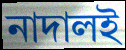
নাদালই